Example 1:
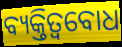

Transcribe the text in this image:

ବ୍ୟକ୍ତିତ୍ୱବୋଧ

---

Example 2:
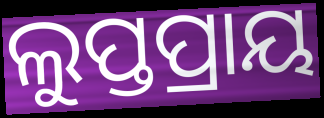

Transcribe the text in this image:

ଲୁପ୍ତପ୍ରାୟ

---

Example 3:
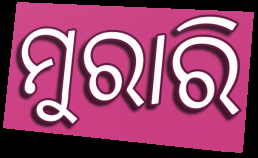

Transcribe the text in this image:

ମୁରାରି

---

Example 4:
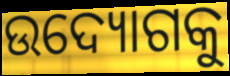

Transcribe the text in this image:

ଉଦ୍ୟୋଗକୁ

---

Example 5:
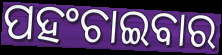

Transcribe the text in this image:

ପହଂଚାଇବାର